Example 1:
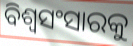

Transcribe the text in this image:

ବିଶ୍ୱସଂସାରକୁ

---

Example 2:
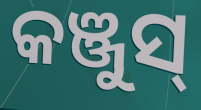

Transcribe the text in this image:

କଞ୍ଜୁସ୍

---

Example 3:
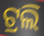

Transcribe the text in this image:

ଟ୍ରଲି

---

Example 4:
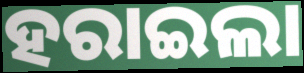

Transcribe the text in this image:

ହରାଇଲା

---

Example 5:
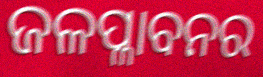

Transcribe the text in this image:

ଜଳପ୍ଳାବନର